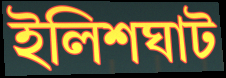
ইলিশঘাট